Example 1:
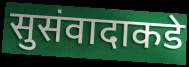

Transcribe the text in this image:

सुसंवादाकडे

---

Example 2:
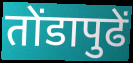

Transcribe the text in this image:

तोंडापुढें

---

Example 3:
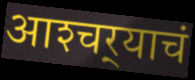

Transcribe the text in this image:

आश्चर्याचं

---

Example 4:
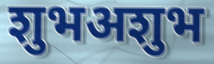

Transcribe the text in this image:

शुभअशुभ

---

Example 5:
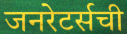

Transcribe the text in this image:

जनरेटर्सची